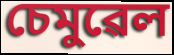
চেমুৱেল